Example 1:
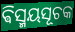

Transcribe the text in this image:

ଵିସ୍ମୟସୂଚକ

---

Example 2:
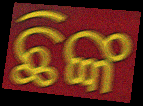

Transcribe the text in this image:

ଛିଙ୍କ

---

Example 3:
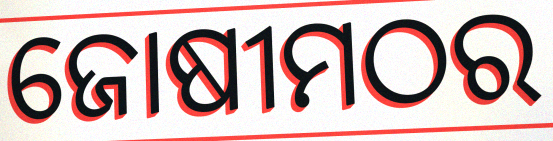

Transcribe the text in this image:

ଜୋଷୀମଠର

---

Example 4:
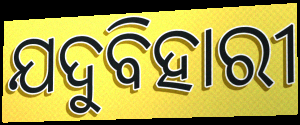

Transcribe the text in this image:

ଯଦୁବିହାରୀ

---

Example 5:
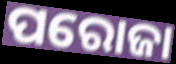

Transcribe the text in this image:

ପରୋଜା